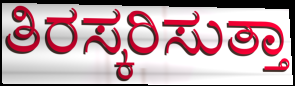
ತಿರಸ್ಕರಿಸುತ್ತಾ